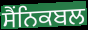
ਸੈੰਨਿਕਬਲ